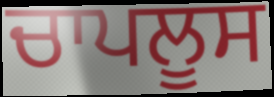
ਚਾਪਲੂਸ